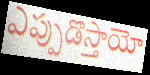
ఎప్పుడొస్తాయో